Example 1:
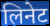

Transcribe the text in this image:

लिनेट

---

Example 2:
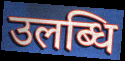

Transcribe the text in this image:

उलब्धि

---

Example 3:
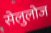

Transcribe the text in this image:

सेलुलोज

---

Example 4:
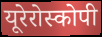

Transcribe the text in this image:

यूरेरोस्कोपी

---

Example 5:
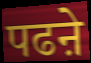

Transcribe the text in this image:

पढऩे